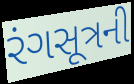
રંગસૂત્રની